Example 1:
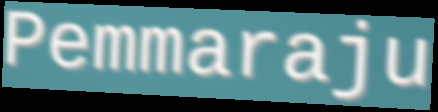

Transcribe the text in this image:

Pemmaraju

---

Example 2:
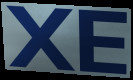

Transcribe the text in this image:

XE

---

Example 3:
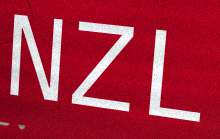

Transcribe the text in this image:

NZL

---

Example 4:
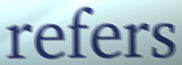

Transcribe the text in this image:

refers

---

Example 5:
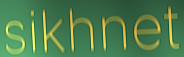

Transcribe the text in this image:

sikhnet